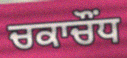
ਚਕਾਚੌਂਧ